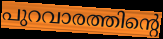
പുറവാരത്തിന്റെ